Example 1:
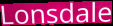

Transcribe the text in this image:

Lonsdale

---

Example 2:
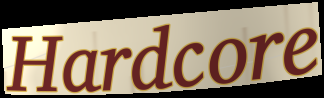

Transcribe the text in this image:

Hardcore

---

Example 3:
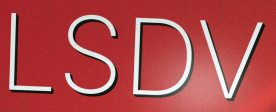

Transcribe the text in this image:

LSDV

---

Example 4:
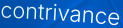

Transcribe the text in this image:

contrivance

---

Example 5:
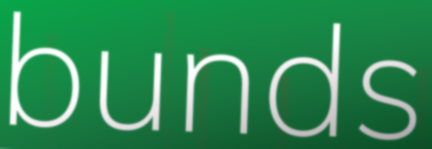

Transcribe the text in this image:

bunds